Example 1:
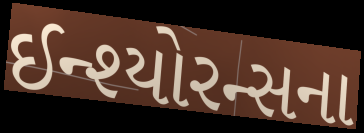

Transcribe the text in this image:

ઈન્શ્યોરન્સના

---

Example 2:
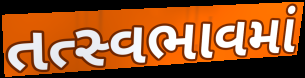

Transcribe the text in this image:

તત્સ્વભાવમાં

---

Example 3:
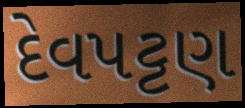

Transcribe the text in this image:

દેવપટ્ટણ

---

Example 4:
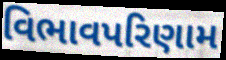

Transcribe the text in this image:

વિભાવપરિણામ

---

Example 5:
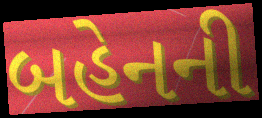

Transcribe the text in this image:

બહેનની